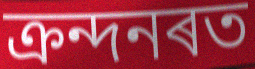
ক্ৰন্দনৰত